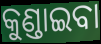
କୁଣ୍ଡାଇବା